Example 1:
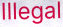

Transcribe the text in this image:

Illegal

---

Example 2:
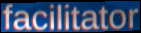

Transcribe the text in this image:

facilitator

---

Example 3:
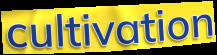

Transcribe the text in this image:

cultivation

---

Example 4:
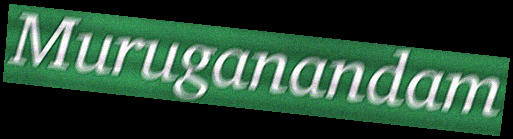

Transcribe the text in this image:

Muruganandam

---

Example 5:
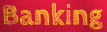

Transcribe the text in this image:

Banking